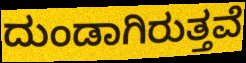
ದುಂಡಾಗಿರುತ್ತವೆ